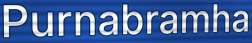
Purnabramha